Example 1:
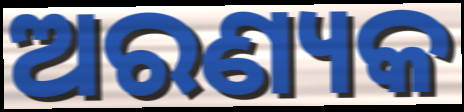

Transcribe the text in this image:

ଅରଣ୍ୟକ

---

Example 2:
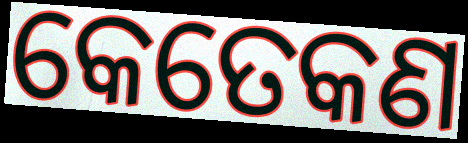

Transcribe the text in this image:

କେତେକଣ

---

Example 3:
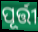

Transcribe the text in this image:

ପୂର୍ତ୍ତୀ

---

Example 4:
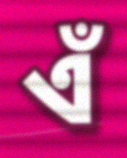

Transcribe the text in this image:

ଏଁ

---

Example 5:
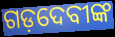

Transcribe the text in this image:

ଗଡ଼ଦେବୀଙ୍କ